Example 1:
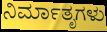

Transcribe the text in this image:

ನಿರ್ಮಾತೃಗಳು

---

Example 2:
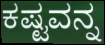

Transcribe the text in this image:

ಕಷ್ಟವನ್ನ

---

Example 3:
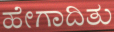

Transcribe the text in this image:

ಹೇಗಾದಿತು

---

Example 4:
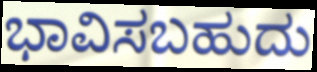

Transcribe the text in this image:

ಭಾವಿಸಬಹುದು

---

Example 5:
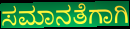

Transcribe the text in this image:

ಸಮಾನತೆಗಾಗಿ